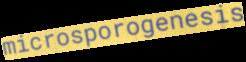
microsporogenesis